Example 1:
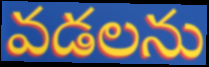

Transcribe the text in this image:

వడలను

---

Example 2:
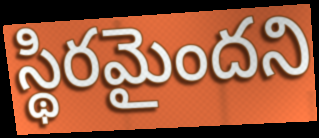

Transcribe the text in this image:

స్థిరమైందని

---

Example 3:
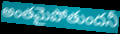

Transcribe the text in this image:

అంతమైపోతుందనీ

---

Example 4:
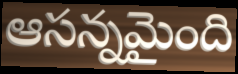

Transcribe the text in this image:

ఆసన్నమైంది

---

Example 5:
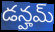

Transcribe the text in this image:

డన్హమ్